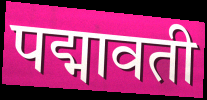
पद्मावती